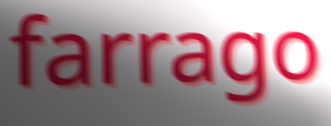
farrago